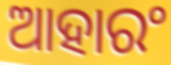
ଆହାରଂ